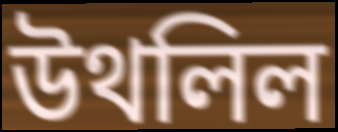
উথলিল